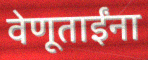
वेणूताईंना